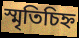
স্মৃতিচিহ্ন